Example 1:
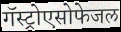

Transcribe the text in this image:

गॅस्ट्रोएसोफेजल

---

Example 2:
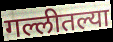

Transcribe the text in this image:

गल्लीतल्या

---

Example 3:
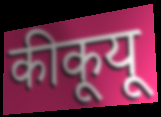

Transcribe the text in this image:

कीकूयू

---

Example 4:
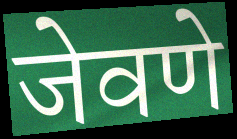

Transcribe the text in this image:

जेवणे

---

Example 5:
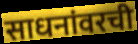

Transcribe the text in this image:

साधनांवरची